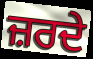
ਜ਼ਰਦੇ